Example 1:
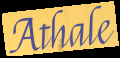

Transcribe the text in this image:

Athale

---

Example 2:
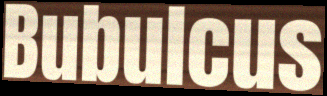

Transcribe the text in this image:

Bubulcus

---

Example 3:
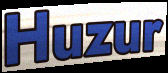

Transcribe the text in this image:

Huzur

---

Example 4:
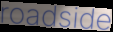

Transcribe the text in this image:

roadside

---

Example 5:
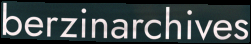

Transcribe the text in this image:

berzinarchives